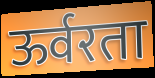
ऊर्वरता